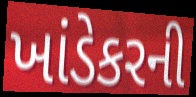
ખાંડેકરની